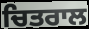
ਚਿਤਰਾਲ